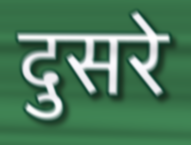
दुसरे